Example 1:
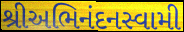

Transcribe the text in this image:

શ્રીઅભિનંદનસ્વામી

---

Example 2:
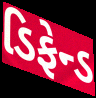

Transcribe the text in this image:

ડિફેન્ડ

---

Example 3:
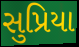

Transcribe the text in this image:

સુપ્રિયા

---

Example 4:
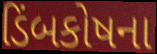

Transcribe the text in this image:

ડિંબકોષના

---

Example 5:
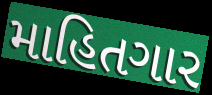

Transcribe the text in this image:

માહિતગાર